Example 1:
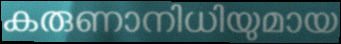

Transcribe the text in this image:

കരുണാനിധിയുമായ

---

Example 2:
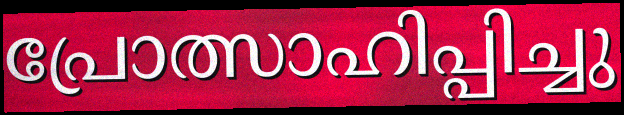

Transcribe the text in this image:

പ്രോത്സാഹിപ്പിച്ചു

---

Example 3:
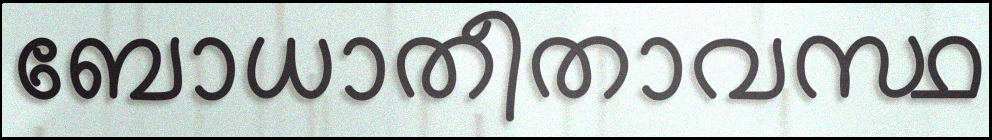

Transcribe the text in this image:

ബോധാതീതാവസ്ഥ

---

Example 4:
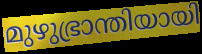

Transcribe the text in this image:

മുഴുഭ്രാന്തിയായി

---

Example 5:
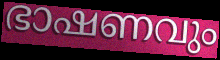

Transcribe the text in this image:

ഭാഷണവും